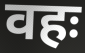
वहः